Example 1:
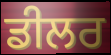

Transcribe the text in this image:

ਡੀਲਰ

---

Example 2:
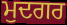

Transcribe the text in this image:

ਮੁਦਗਰ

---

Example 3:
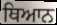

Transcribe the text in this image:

ਥਿਆਨ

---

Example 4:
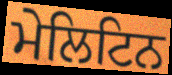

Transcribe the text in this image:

ਮੇਲਿਟਿਨ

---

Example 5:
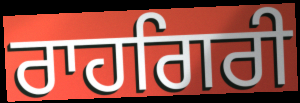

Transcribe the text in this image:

ਰਾਹਗਿਰੀ